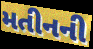
મતીનની